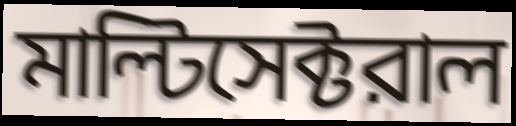
মাল্টিসেক্টরাল